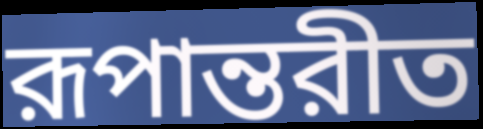
রূপান্তরীত